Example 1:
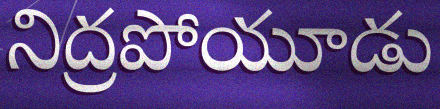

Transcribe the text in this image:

నిద్రపోయూడు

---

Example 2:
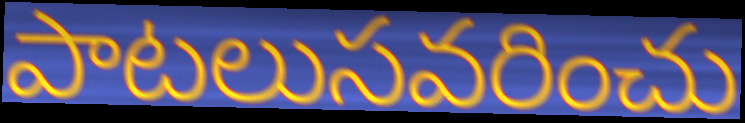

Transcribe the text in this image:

పాటలుసవరించు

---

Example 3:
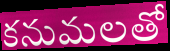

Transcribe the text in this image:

కనుమలతో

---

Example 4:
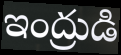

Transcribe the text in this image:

ఇంద్రుడి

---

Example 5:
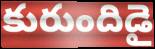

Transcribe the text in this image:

కురుందిడై